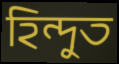
হিন্দুত